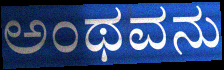
ಅಂಥವನು